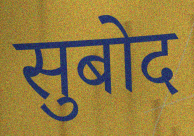
सुबोद